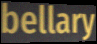
bellary